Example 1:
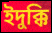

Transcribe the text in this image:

ইদুক্কি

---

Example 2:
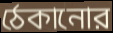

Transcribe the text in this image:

ঠেকানোর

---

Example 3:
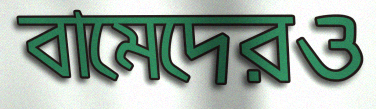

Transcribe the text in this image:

বামেদেরও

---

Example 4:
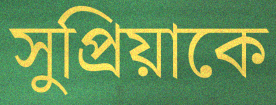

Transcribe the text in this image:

সুপ্রিয়াকে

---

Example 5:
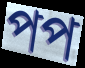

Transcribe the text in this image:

পপ